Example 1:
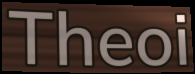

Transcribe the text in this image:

Theoi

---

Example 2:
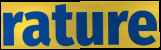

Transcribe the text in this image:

rature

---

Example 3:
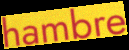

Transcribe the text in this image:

hambre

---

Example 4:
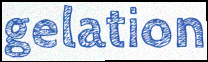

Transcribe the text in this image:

gelation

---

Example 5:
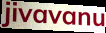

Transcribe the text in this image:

jivavanu